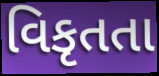
વિકૃતતા